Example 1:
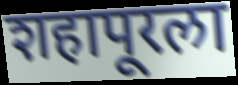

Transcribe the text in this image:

शहापूरला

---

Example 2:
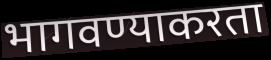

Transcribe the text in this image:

भागवण्याकरता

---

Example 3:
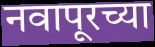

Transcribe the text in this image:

नवापूरच्या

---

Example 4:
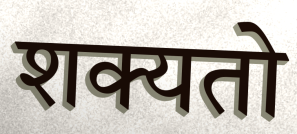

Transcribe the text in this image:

शक्‍यतो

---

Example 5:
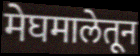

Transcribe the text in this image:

मेघमालेतून